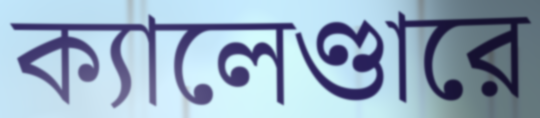
ক্যালেণ্ডারে